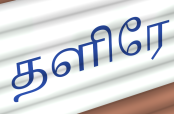
தளிரே